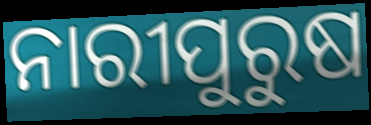
ନାରୀପୁରୁଷ